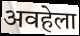
अवहेला